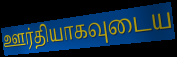
ஊர்தியாகவுடைய